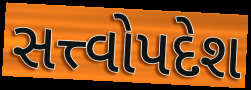
સત્ત્વોપદેશ